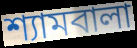
শ্যামবালা